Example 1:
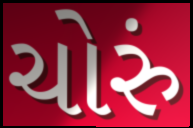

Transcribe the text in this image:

ચોરું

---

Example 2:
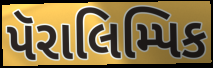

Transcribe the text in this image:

પૅરાલિમ્પિક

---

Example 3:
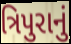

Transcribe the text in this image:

ત્રિપુરાનું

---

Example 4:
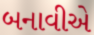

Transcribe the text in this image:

બનાવીએ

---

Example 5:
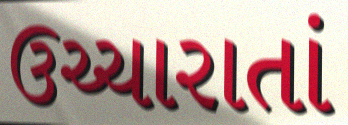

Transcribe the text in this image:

ઉચ્ચારાતાં